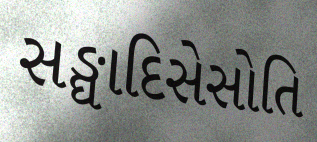
સઙ્ઘાદિસેસોતિ